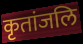
कृतांजलि